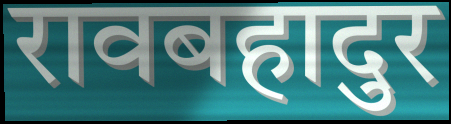
रावबहादुर